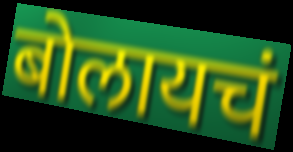
बोलायचं